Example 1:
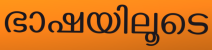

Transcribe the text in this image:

ഭാഷയിലൂടെ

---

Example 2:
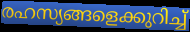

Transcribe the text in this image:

രഹസ്യങ്ങളെക്കുറിച്ച്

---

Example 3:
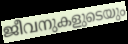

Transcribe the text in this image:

ജീവനുകളുടെയും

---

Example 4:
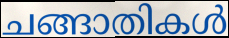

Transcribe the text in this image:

ചങ്ങാതികൾ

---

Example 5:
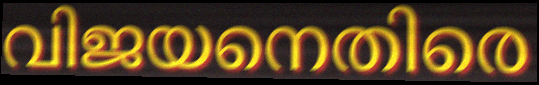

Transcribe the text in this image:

വിജയനെതിരെ